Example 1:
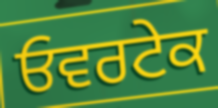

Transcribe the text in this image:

ਓਵਰਟੇਕ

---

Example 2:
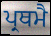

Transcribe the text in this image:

ਪ੍ਰਥਮੈ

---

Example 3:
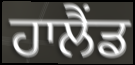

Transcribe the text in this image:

ਹਾਲੈਂਡ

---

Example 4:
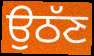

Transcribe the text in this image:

ਉਠੱਣ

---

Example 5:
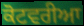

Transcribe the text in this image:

ਕੋਟਵਰੀਆ